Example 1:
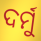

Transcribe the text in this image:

ଦର୍ମୁ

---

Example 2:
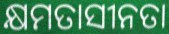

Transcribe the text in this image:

କ୍ଷମତାସୀନତା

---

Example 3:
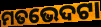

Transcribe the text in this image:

ମତଭେଦଟା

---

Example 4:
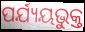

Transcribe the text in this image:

ପର୍ଯ୍ୟୟଭୁକ୍ତ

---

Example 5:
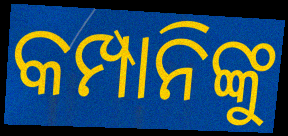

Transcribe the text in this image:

କମ୍ପାନିଙ୍କୁ